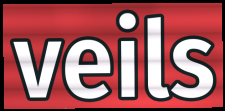
veils